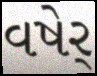
વષેર્